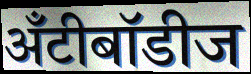
अँटीबॉडीज